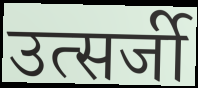
उत्सर्जी